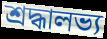
শ্রদ্ধালভ্য